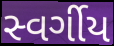
સ્વર્ગીય